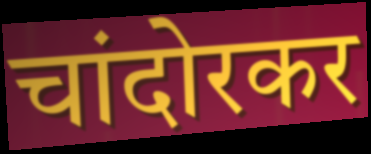
चांदोरकर